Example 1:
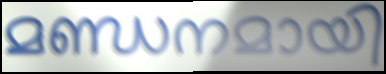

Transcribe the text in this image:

മണ്ഡനമായി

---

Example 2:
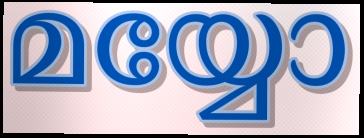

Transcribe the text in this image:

മയ്യോ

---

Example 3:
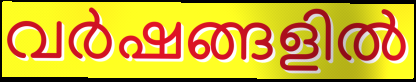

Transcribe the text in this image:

വർഷങ്ങളിൽ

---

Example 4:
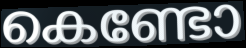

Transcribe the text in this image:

കെണ്ടോ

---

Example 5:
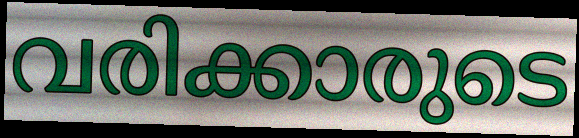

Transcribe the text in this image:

വരിക്കാരുടെ